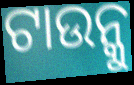
ଟାଉନ୍କୁ